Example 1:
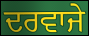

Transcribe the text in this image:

ਦਰਵਾਜੇ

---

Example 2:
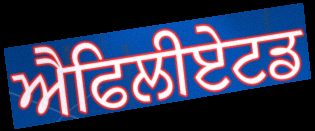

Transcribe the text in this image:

ਐਫਿਲੀਏਟਡ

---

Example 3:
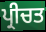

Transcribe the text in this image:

ਪ੍ਰੀਚਤ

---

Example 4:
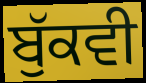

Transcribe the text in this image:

ਬੁੱਕਵੀ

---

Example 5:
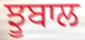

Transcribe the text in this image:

ਝੂਬਾਲ